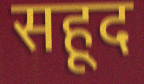
सहूद